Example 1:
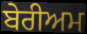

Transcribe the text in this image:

ਬੇਰੀਅਮ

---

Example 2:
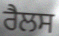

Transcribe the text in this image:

ਰੈਲਸ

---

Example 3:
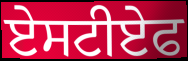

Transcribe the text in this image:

ਏਸਟੀਏਫ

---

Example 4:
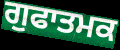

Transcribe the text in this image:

ਗੁਫਾਤਮਕ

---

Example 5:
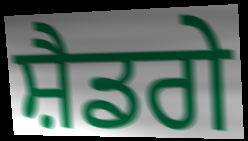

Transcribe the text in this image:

ਸ਼ੈਡਗੇ